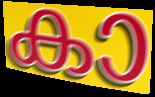
കാ